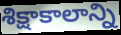
శిక్షాకాలాన్ని